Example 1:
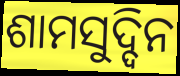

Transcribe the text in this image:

ଶାମସୁଦ୍ଦିନ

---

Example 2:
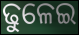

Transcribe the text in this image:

ଢୁଳେଇ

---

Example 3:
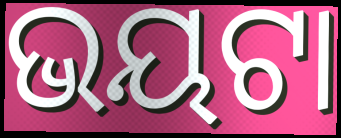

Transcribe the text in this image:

ଭୟଟା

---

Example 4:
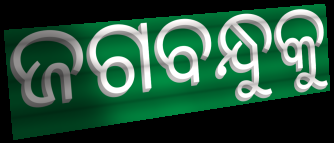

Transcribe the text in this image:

ଜଗବନ୍ଧୁକୁ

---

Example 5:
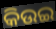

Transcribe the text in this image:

କିଉଇ